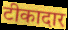
टीकादार